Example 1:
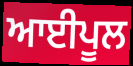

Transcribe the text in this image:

ਆਈਪੂਲ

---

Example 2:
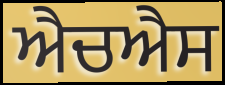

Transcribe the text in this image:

ਐਚਐਸ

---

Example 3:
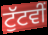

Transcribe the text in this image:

ਟੁੱਟਵੀਂ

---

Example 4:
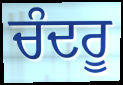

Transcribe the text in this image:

ਚੰਦਰੂ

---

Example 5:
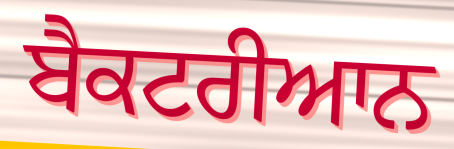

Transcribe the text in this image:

ਬੈਕਟਰੀਆਨ